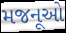
મજનૂઓ